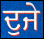
ਦੁਜੇ